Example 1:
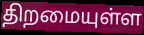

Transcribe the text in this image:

திறமையுள்ள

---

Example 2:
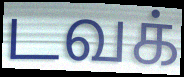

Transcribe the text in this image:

டவக்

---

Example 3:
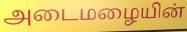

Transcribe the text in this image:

அடைமழையின்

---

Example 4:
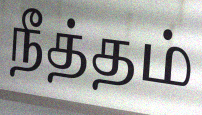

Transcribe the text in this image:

நீத்தம்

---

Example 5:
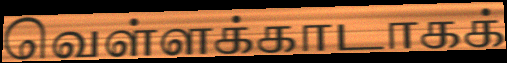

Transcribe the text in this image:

வெள்ளக்காடாகக்